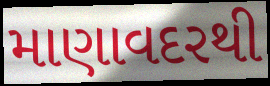
માણાવદરથી